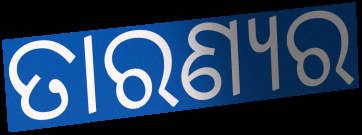
ତାରଣ୍ୟର